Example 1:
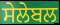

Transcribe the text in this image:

ਸੇਲੇਬਲ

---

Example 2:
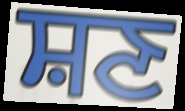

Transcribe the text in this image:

ਸ਼ਣ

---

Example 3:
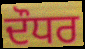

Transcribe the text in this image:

ਦੌਧਰ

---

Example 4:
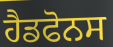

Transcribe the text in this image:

ਹੈਡਫੋਨਸ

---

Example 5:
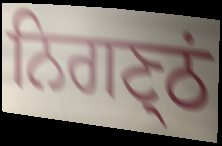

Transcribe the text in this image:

ਨਿਗਣ੍ਠਂ